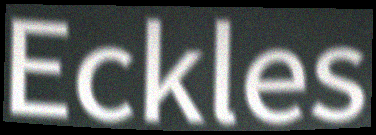
Eckles